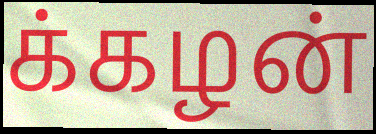
க்கழன்